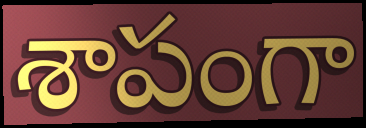
శాపంగా